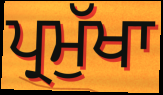
ਪ੍ਰਮੁੱਖਾ